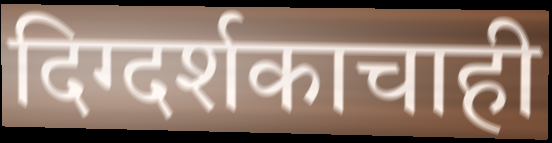
दिग्दर्शकाचाही